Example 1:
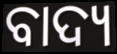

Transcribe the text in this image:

ବାଦ୍ଯ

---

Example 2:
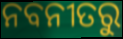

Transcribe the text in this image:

ନବନୀତରୁ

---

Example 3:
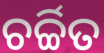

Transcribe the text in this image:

ଚର୍ଚ୍ଚିତ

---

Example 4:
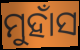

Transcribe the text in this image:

ମୁହାଁସ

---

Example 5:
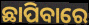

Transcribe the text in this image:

ଛାପିବାରେ